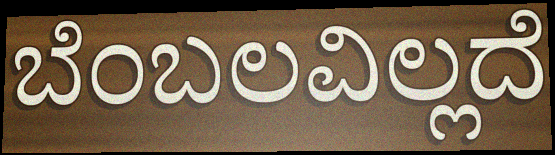
ಬೆಂಬಲವಿಲ್ಲದೆ